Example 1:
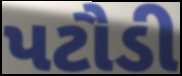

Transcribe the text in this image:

પટૌડી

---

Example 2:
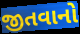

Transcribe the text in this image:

જીતવાનો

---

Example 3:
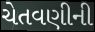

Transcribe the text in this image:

ચેતવણીની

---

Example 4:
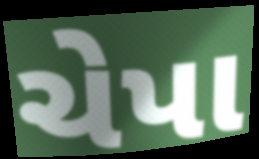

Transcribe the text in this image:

ચેપા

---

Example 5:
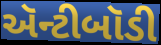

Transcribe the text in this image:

ઍન્ટીબૉડી